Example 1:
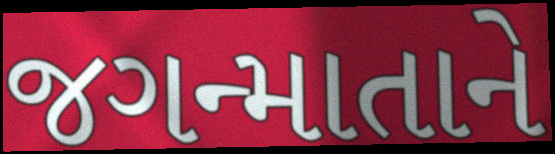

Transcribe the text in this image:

જગન્માતાને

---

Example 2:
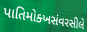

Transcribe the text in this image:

પાતિમોક્ખસંવરસીલે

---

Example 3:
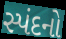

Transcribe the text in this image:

સ્પંદનો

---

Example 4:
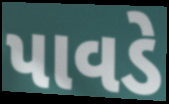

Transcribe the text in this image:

પાવડે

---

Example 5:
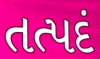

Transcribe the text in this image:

તત્પદં